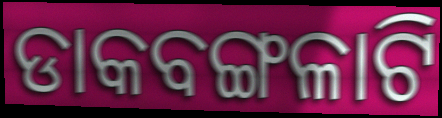
ଡାକବଙ୍ଗଳାଟି